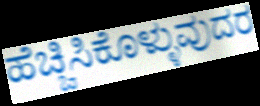
ಹೆಚ್ಚಿಸಿಕೊಳ್ಳುವುದರ